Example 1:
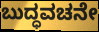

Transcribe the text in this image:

ಬುದ್ಧವಚನೇ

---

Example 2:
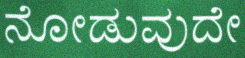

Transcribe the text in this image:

ನೋಡುವುದೇ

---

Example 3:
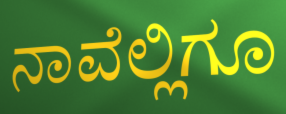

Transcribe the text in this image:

ನಾವೆಲ್ಲಿಗೂ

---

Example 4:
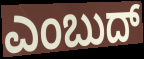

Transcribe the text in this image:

ಎಂಬುದ್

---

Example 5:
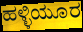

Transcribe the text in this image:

ಹಳ್ಳಿಯೂರ